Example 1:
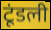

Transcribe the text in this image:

टूंडली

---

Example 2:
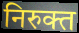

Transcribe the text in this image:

निरुक्त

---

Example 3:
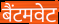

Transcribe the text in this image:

बैंटमवेट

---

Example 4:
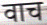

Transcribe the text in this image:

वाच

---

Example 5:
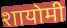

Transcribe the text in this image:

शायोमी